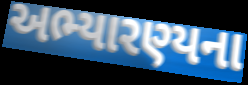
અભ્યારણ્યના